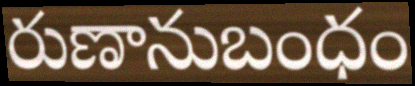
రుణానుబంధం